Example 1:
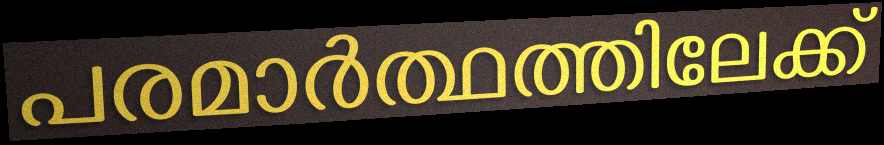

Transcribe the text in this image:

പരമാർത്ഥത്തിലേക്ക്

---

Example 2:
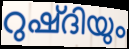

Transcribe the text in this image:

റുഷ്ദിയും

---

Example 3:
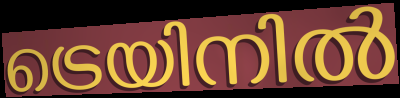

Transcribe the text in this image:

ട്രെയിനിൽ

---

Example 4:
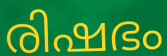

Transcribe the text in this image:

രിഷഭം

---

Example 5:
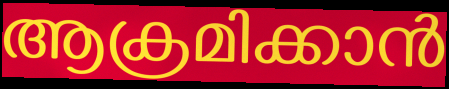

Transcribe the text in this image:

ആക്രമിക്കാൻ